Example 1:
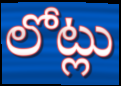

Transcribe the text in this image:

లోట్లు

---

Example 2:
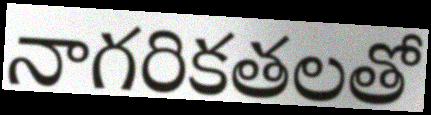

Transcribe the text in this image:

నాగరికతలతో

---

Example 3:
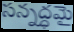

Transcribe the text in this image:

సన్నద్ధమై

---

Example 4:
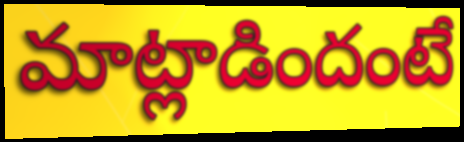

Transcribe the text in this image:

మాట్లాడిందంటే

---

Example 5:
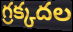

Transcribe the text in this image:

గ్రక్కదల